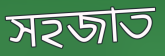
সহজাত